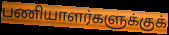
பணியாளர்களுக்குக்